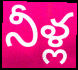
నీళ్ల